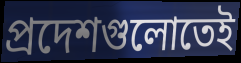
প্রদেশগুলোতেই